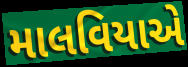
માલવિયાએ